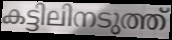
കട്ടിലിനടുത്ത്